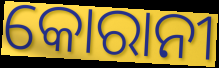
କୋରାନୀ